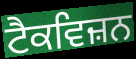
ਟੈਕਵਿਜ਼ਨ